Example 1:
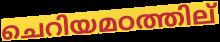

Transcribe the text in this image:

ചെറിയമഠത്തില്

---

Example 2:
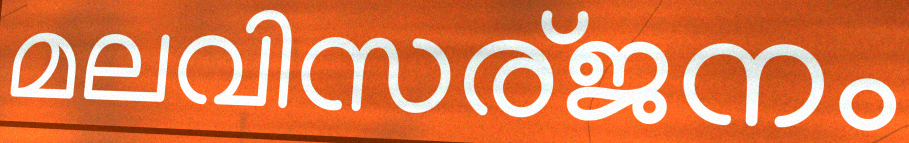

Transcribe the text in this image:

മലവിസര്ജനം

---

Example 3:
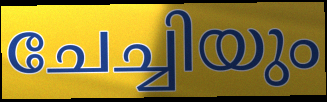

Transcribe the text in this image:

ചേച്ചിയും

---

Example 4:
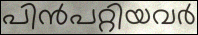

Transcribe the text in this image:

പിൻപറ്റിയവർ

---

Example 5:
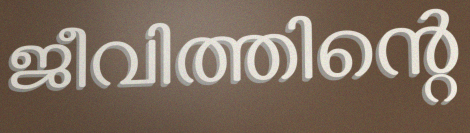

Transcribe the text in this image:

ജീവിത്തിന്റെ